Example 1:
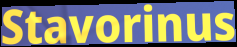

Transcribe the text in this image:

Stavorinus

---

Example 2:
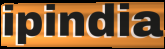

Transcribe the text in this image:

ipindia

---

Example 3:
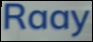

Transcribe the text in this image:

Raay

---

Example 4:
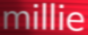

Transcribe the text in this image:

millie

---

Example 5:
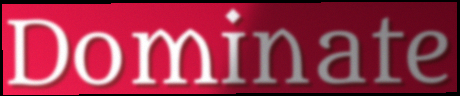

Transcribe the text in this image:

Dominate